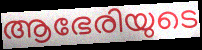
ആഭേരിയുടെ